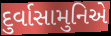
દુર્વાસામુનિએ